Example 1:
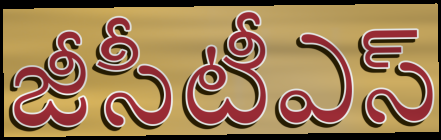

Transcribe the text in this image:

జీసీటీఎస్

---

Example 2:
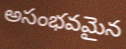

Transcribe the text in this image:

అసంభవమైన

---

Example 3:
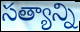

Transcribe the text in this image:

సత్యాన్ని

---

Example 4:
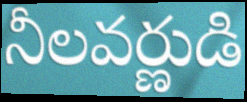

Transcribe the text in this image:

నీలవర్ణుడి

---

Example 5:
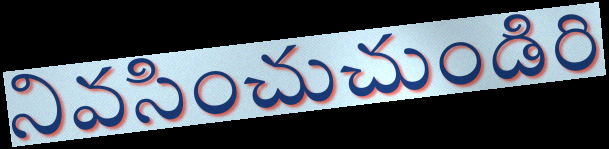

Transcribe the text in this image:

నివసించుచుండిరి